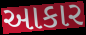
આકાર